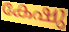
കേഷു